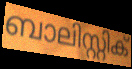
ബാലിസ്റ്റിക്